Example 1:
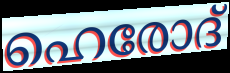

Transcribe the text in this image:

ഹെരോദ്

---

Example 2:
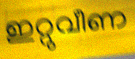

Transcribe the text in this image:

ഇറ്റുവീണ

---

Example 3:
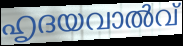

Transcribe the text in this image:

ഹൃദയവാൽവ്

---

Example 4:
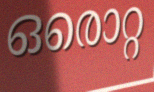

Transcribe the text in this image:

ഒരൊറ്റ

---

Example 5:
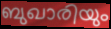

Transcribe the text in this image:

ബുഖാരിയും